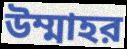
উম্মাহর